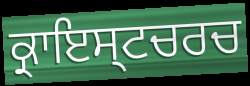
ਕ੍ਰਾਇਸ੍ਟਚਰਚ